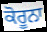
ਕੋਰੂਨਾ